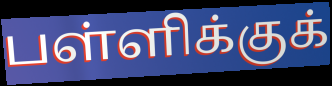
பள்ளிக்குக்